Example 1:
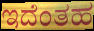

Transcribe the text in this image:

ಇದೆಂತಹ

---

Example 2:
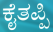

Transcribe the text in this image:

ಕೈತಪ್ಪಿ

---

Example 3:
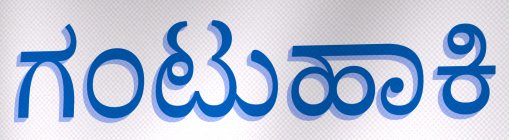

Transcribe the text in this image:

ಗಂಟುಹಾಕಿ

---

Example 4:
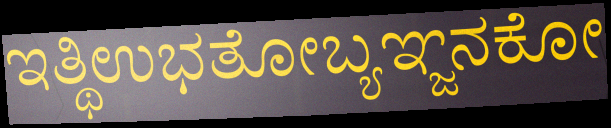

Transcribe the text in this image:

ಇತ್ಥಿಉಭತೋಬ್ಯಞ್ಜನಕೋ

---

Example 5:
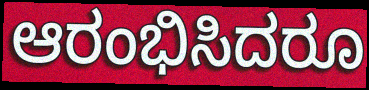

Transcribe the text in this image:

ಆರಂಭಿಸಿದರೂ